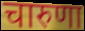
चारुणा